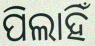
ପିଲାହିଁ